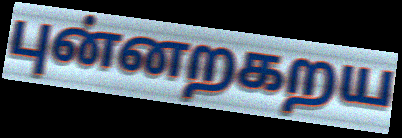
புன்னறகறய